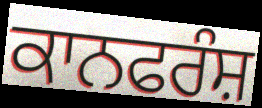
ਕਾਨਫਰੰਸ਼